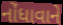
નોંધાવાને